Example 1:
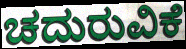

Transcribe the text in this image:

ಚದುರುವಿಕೆ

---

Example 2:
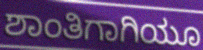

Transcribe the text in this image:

ಶಾಂತಿಗಾಗಿಯೂ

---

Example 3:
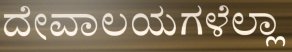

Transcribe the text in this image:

ದೇವಾಲಯಗಳೆಲ್ಲಾ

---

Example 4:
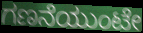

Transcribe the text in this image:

ಗಣನೆಯುಂಟೇ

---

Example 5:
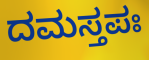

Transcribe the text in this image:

ದಮಸ್ತಪಃ